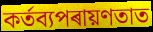
কৰ্তব্যপৰায়ণতাত